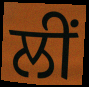
ਲੀਂ